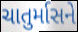
ચાતુર્માસને